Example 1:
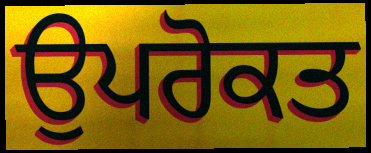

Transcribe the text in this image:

ਉਪਰੋਕਤ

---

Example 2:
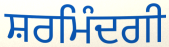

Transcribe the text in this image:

ਸ਼ਰਮਿੰਦਗੀ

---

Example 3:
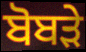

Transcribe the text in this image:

ਬੋਬੜੇ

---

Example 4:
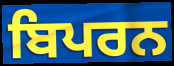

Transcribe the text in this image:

ਬਿਪਰਨ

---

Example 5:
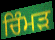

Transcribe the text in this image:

ਚਿੰਮੜ